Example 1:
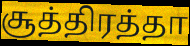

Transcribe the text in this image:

சூத்திரத்தா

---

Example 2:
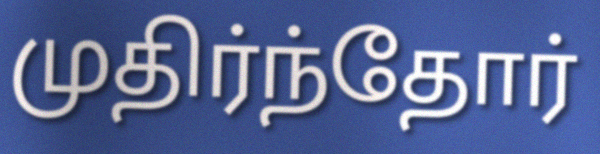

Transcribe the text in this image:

முதிர்ந்தோர்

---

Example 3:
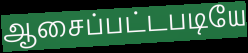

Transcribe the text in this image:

ஆசைப்பட்டபடியே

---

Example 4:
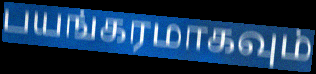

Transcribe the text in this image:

பயங்கரமாகவும்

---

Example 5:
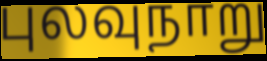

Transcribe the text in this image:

புலவுநாறு